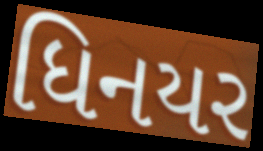
ધિનયર